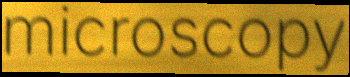
microscopy